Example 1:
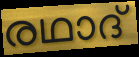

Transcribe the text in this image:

രഥാദ്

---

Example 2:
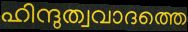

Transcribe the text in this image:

ഹിന്ദുത്വവാദത്തെ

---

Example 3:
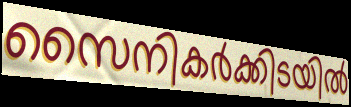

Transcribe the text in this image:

സൈനികർക്കിടയിൽ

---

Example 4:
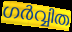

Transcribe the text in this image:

ഗർവ്വിത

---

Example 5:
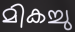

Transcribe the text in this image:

മികച്ചു